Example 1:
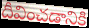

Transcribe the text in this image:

దీవించడానికి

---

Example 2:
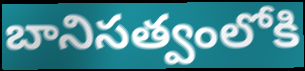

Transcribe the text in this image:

బానిసత్వంలోకి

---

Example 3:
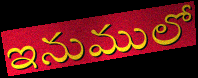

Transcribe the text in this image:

ఇనుములో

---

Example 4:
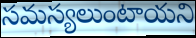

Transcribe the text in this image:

సమస్యలుంటాయని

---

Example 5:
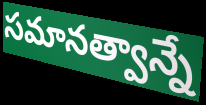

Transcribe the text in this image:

సమానత్వాన్నే